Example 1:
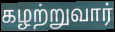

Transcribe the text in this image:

கழற்றுவார்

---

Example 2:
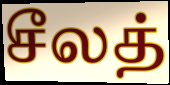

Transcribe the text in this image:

சீலத்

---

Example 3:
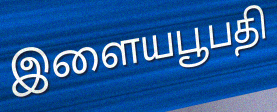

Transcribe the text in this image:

இளையபூபதி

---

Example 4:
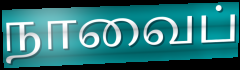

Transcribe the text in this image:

நாவைப்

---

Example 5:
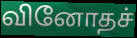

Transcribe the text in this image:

வினோதச்